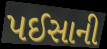
પઈસાની